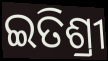
ଇତିଶ୍ରୀ